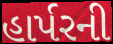
હાર્પરની